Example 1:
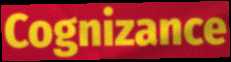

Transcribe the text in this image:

Cognizance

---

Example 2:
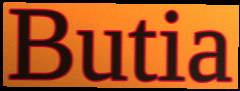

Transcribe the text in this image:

Butia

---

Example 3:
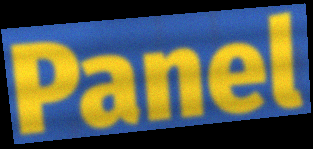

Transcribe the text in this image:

Panel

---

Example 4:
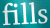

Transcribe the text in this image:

fills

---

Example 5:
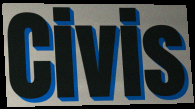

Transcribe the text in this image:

Civis